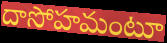
దాసోహమంటూ